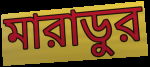
মারাডুর